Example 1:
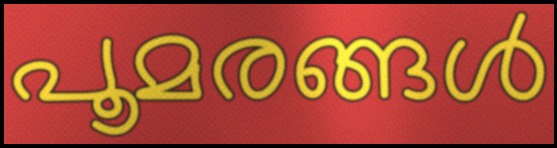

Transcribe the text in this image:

പൂമരങ്ങൾ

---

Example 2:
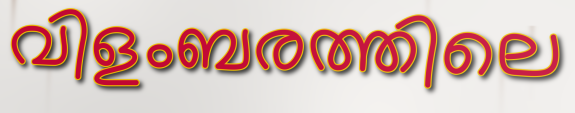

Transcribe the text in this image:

വിളംബരത്തിലെ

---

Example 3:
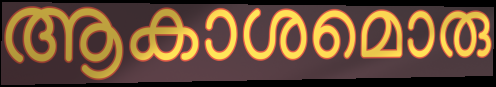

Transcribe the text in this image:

ആകാശമൊരു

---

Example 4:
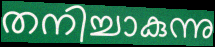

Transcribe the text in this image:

തനിച്ചാകുന്നു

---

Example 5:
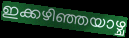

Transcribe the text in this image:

ഇക്കഴിഞ്ഞയാഴ്ച